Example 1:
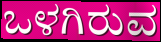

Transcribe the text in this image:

ಒಳಗಿರುವ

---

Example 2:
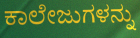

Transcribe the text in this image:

ಕಾಲೇಜುಗಳನ್ನು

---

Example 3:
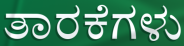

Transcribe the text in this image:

ತಾರಕೆಗಳು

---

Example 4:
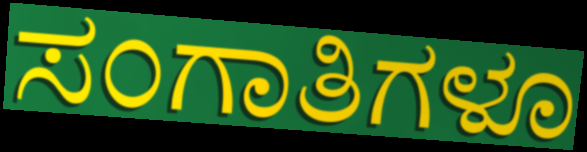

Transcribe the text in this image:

ಸಂಗಾತಿಗಳೂ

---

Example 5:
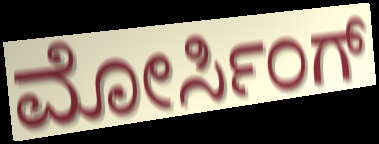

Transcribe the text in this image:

ಮೋರ್ಸಿಂಗ್